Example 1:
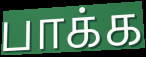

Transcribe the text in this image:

பாக்க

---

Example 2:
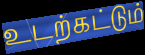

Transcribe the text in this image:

உடற்கட்டும்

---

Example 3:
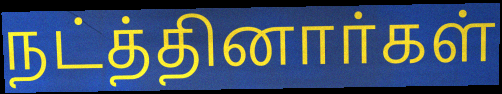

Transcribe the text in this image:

நட்த்தினார்கள்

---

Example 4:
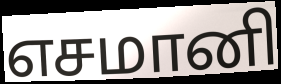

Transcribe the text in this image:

எசமானி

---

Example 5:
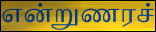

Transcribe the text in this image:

என்றுணரச்